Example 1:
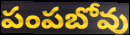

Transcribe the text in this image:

పంపబోవు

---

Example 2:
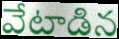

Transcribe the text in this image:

వేటాడిన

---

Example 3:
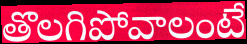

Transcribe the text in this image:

తొలగిపోవాలంటే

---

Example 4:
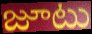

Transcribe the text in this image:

జూటు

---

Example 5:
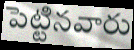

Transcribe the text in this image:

పెట్టినవారు